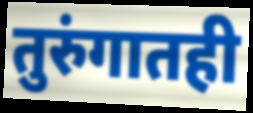
तुरुंगातही